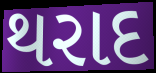
થરાદ